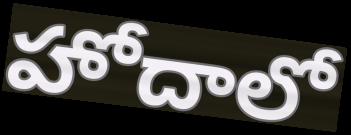
హోదాలో